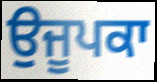
ਉਜੂਪਕਾ